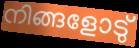
നിങ്ങളോടു്